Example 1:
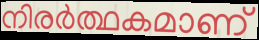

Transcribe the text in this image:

നിരർത്ഥകമാണ്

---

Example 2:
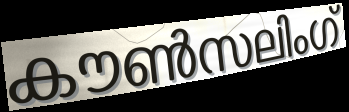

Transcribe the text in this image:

കൗൺസലിംഗ്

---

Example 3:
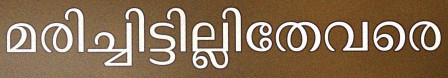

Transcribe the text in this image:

മരിച്ചിട്ടില്ലിതേവരെ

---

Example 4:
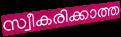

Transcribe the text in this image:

സ്വീകരിക്കാത്ത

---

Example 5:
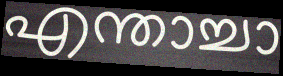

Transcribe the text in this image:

എന്താച്ചാ